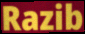
Razib